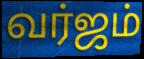
வர்ஜம்